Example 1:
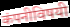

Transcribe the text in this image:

कंपनीविषयी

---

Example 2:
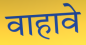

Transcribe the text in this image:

वाहावे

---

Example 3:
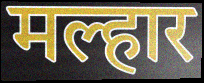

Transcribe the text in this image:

मल्हार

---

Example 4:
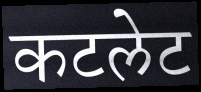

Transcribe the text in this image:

कटलेट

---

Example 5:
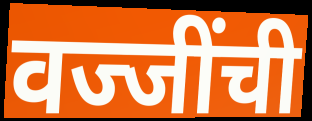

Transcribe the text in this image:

वज्जींची